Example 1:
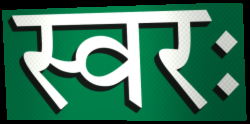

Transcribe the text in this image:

स्वरः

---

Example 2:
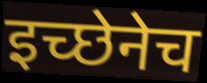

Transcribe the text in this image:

इच्छेनेच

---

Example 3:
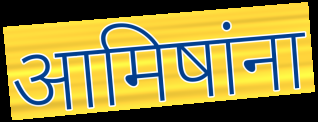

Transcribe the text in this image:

आमिषांना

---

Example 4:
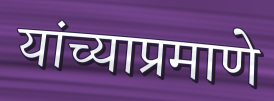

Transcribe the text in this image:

यांच्याप्रमाणे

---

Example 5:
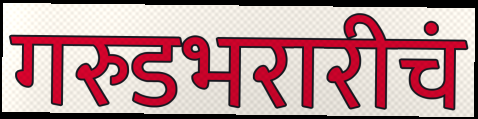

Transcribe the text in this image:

गरुडभरारीचं